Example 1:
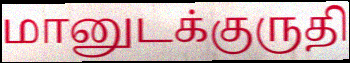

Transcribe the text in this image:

மானுடக்குருதி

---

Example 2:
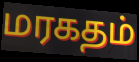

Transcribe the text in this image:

மரகதம்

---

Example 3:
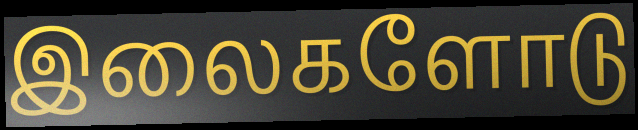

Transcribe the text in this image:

இலைகளோடு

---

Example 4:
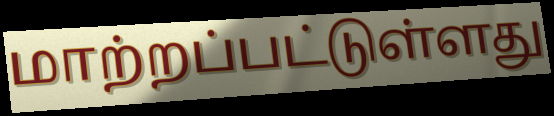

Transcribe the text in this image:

மாற்றப்பட்டுள்ளது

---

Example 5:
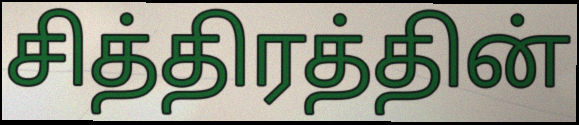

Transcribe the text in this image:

சித்திரத்தின்